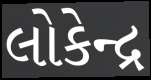
લોકેન્દ્ર